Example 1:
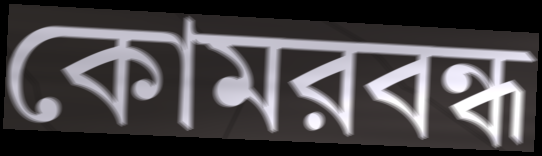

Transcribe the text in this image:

কোমরবন্ধ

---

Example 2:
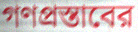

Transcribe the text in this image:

গণপ্রস্তাবের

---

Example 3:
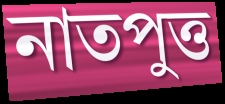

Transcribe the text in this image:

নাতপুত্ত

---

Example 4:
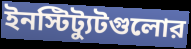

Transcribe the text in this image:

ইনস্টিট্যুটগুলোর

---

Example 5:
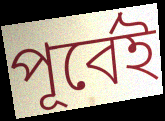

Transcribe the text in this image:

পূর্বেই